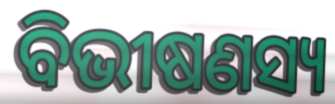
ବିଭୀଷଣସ୍ୟ